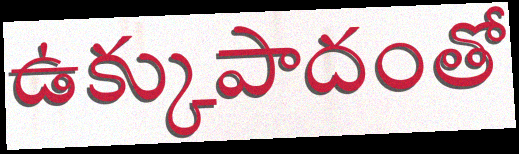
ఉక్కుపాదంతో